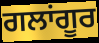
ਗਲਾਂਗੂਰ